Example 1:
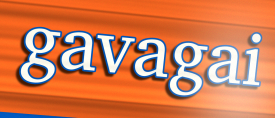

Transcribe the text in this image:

gavagai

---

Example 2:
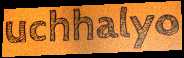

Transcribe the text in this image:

uchhalyo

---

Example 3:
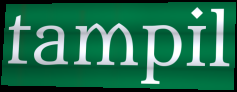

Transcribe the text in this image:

tampil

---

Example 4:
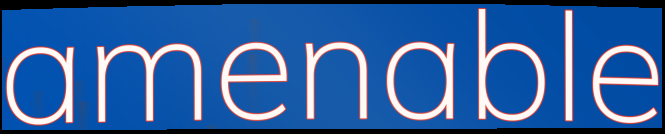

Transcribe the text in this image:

amenable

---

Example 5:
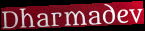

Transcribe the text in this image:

Dharmadev